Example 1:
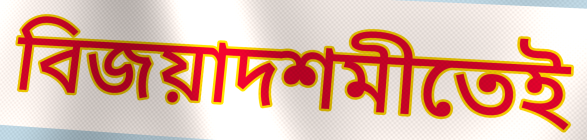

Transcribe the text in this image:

বিজয়াদশমীতেই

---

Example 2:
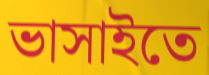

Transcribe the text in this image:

ভাসাইতে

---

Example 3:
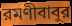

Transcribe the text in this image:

রমণীবাবুর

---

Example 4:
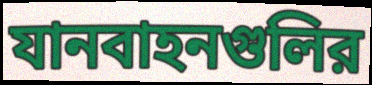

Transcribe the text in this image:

যানবাহনগুলির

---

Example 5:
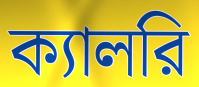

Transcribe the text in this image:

ক্যালরি